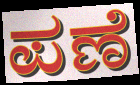
ಪಣೆ